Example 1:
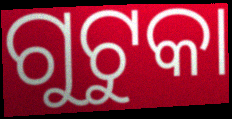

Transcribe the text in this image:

ଗୁଟୁକା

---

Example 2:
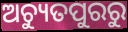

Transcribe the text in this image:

ଅଚ୍ୟୁତପୁରରୁ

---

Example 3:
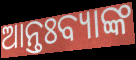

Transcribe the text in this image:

ଆନ୍ତଃବ୍ୟାଙ୍କ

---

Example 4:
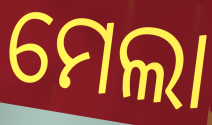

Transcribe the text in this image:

ମେଲା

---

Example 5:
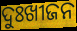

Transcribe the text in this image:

ଦୁଃଖୀଜନ